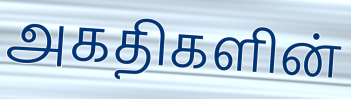
அகதிகளின்